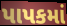
પાપકમાં